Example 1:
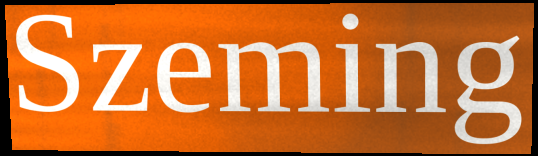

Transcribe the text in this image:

Szeming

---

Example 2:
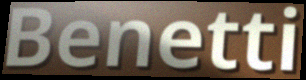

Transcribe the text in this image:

Benetti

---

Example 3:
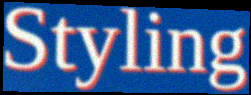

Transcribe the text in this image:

Styling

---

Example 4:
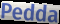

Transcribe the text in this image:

Pedda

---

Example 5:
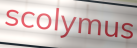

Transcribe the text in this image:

scolymus